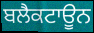
ਬਲੈਕਟਾਊਨ